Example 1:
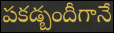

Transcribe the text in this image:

పకడ్బందీగానే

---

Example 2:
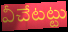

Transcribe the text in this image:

వీచేటట్టు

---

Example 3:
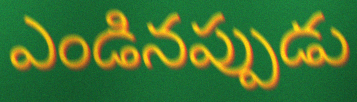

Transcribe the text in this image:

ఎండినప్పుడు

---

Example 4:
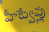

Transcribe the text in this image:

హీట్వేవ్లు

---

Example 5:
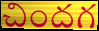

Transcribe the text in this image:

చిందగ